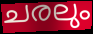
ചരലും